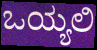
ಒಯ್ಯಲಿ